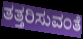
ತತ್ತರಿಸುವಂತೆ